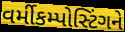
વર્મીકમ્પોસ્ટિંગને